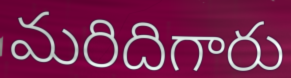
మరిదిగారు